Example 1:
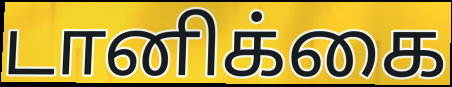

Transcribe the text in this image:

டானிக்கை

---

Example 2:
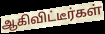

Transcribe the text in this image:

ஆகிவிட்டீர்கள்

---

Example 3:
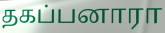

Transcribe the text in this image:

தகப்பனாரா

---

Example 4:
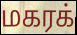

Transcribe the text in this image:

மகரக்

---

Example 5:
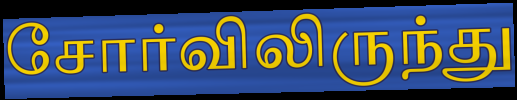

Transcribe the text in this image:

சோர்விலிருந்து